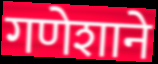
गणेशाने